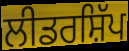
ਲੀਡਰਸ਼ਿੱਪ